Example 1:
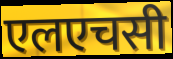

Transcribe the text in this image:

एलएचसी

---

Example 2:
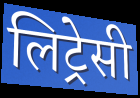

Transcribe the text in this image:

लिट्रेसी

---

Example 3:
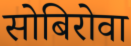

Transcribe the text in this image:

सोबिरोवा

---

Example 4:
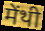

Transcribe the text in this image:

मेंथी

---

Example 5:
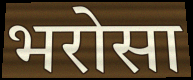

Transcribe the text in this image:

भरोसा